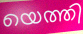
യെത്തി